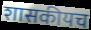
शासकीयच